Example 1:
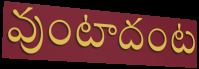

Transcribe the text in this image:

వుంటాదంట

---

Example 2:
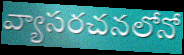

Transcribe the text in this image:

వ్యాసరచనలోనో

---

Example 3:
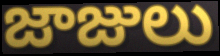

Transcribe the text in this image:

జాజులు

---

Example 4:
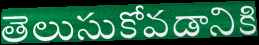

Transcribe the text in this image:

తెలుసుకోవడానికి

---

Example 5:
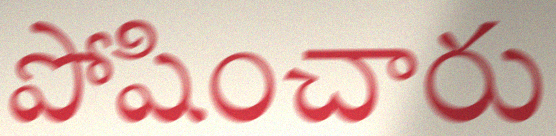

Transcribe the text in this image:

పోషించారు